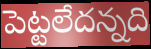
పెట్టలేదన్నది